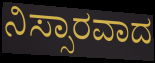
ನಿಸ್ಸಾರವಾದ